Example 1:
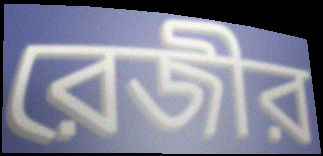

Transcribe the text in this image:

রেজীর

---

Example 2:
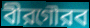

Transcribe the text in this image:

বীরগৌরব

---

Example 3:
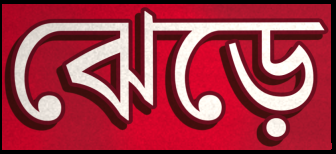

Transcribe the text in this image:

ঝেড়ে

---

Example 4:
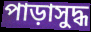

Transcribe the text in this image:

পাড়াসুদ্ধ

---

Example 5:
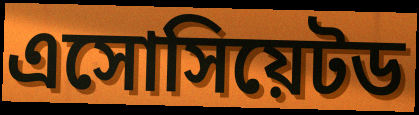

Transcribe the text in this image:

এসোসিয়েটড